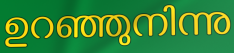
ഉറഞ്ഞുനിന്നു